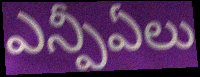
ఎన్పీఏలు